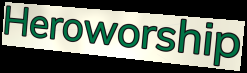
Heroworship